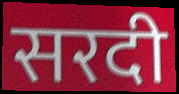
सरदी